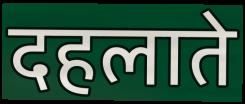
दहलाते